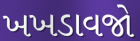
ખખડાવજો